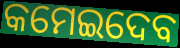
କମେଇଦେବ